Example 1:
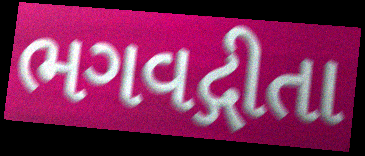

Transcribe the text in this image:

ભગવદ્ગીતા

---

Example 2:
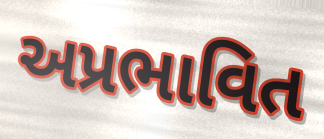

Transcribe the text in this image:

અપ્રભાવિત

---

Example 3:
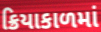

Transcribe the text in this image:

ક્રિયાકાળમાં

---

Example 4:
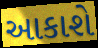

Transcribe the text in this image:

આકાશે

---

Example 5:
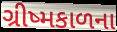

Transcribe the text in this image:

ગ્રીષ્મકાળના